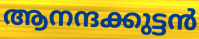
ആനന്ദക്കുട്ടൻ